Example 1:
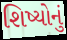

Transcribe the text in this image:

શિષ્યોનું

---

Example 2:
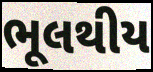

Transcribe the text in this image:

ભૂલથીય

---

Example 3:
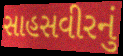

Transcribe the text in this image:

સાહસવીરનું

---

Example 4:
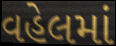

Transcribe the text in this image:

વહેલમાં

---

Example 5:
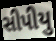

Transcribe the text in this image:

સીપીયુ